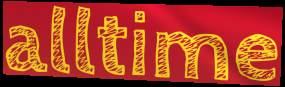
alltime